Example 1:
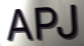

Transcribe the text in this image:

APJ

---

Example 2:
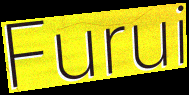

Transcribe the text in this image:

Furui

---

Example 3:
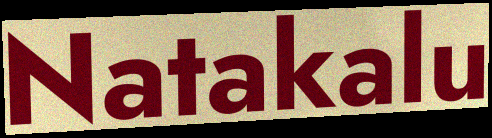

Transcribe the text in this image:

Natakalu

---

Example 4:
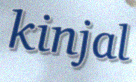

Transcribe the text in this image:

kinjal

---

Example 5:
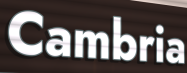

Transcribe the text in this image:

Cambria